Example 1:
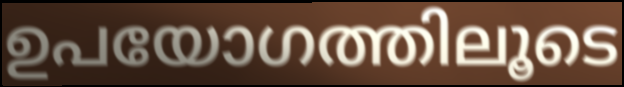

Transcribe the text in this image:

ഉപയോഗത്തിലൂടെ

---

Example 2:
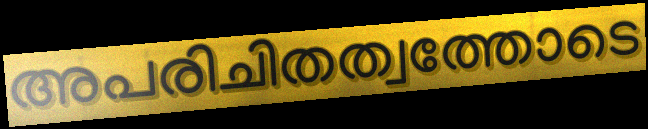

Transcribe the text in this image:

അപരിചിതത്വത്തോടെ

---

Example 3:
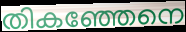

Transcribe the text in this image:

തികഞ്ഞേനെ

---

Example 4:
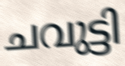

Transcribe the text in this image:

ചവുട്ടി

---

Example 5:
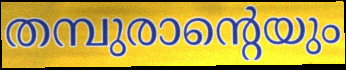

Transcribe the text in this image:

തമ്പുരാന്റെയും